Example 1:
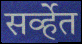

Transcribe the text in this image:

सर्व्हेत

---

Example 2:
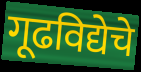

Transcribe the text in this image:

गूढविद्येचे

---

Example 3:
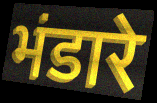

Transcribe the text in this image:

भंडारे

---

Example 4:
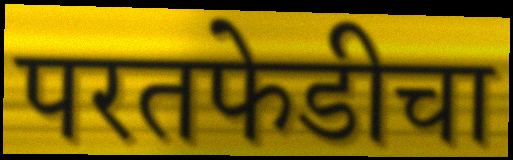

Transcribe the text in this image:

परतफेडीचा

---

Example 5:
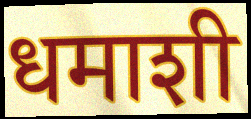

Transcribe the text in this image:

धमाशी